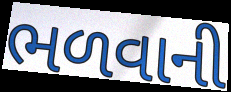
ભળવાની